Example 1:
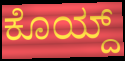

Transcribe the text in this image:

ಕೊಯ್ದ್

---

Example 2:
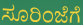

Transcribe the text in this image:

ಸೂರಿಂಜೆಗೆ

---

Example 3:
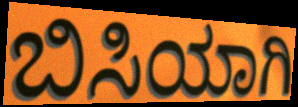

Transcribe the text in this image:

ಬಿಸಿಯಾಗಿ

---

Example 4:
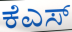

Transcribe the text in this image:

ಕೆಎಸ್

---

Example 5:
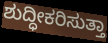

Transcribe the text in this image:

ಶುದ್ಧೀಕರಿಸುತ್ತಾ